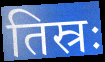
तिस्रः